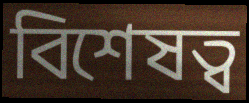
বিশেষত্ব